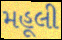
મહૂલી